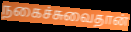
நகைச்சுவைதான்